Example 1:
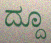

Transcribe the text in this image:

ದ್ದೂ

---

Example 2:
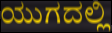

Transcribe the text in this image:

ಯುಗದಲ್ಲಿ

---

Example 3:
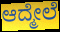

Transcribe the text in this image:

ಆದ್ಮೇಲೆ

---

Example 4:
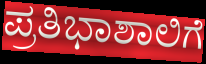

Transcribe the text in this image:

ಪ್ರತಿಭಾಶಾಲಿಗೆ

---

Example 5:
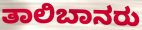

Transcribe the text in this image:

ತಾಲಿಬಾನರು